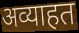
अव्याहत